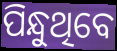
ପିନ୍ଧୁଥିବେ